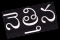
నెత్తిన